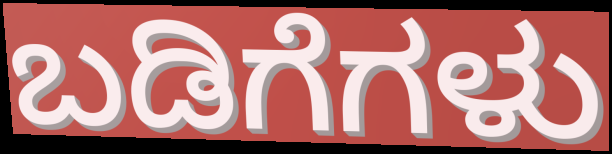
ಬಡಿಗೆಗಳು